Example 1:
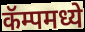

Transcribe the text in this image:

कॅम्पमध्ये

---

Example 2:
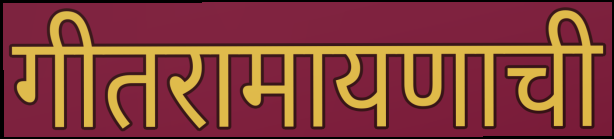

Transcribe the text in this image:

गीतरामायणाची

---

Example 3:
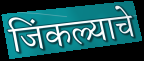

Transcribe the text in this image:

जिंकल्याचे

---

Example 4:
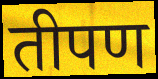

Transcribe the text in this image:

तीपण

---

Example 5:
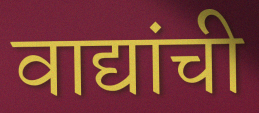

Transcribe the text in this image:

वाद्यांची